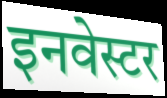
इनवेस्टर